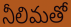
నీలిమతో